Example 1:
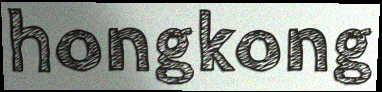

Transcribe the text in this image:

hongkong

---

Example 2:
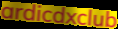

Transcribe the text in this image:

ardicdxclub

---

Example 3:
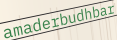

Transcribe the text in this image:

amaderbudhbar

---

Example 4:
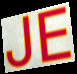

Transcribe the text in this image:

JE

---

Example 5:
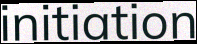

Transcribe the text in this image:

initiation